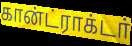
கான்ட்ராக்டர்